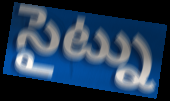
సైట్ను